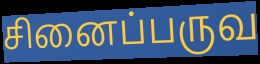
சினைப்பருவ